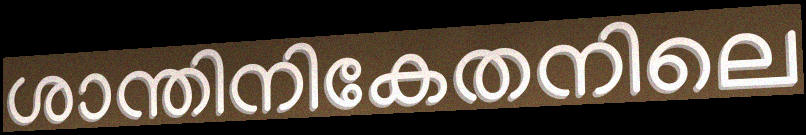
ശാന്തിനികേതനിലെ